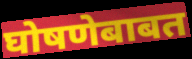
घोषणेबाबत